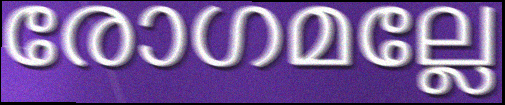
രോഗമല്ലേ